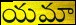
యమా